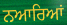
ਨਆਰਿਆਂ